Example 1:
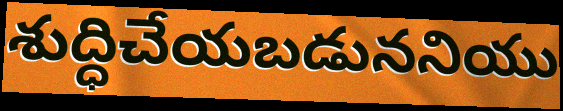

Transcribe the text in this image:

శుద్ధిచేయబడుననియు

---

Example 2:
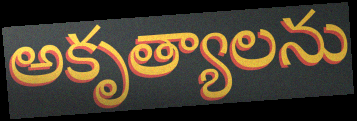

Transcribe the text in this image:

అకృత్యాలను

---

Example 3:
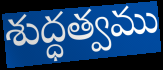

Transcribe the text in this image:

శుద్ధత్వము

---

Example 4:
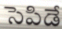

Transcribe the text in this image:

సెపిడే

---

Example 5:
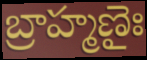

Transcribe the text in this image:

బ్రాహ్మణైః